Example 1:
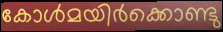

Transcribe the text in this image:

കോൾമയിർക്കൊണ്ടു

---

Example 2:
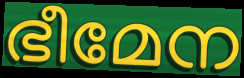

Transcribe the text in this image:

ഭീമേന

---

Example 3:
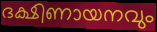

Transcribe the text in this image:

ദക്ഷിണായനവും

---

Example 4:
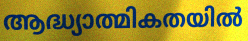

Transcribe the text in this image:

ആദ്ധ്യാത്മികതയിൽ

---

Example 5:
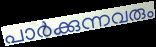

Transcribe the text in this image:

പാർക്കുന്നവരും